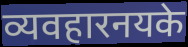
व्यवहारनयके